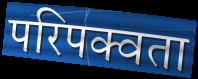
परिपक्‍वता